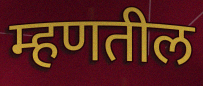
म्हणतील